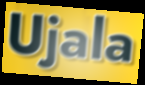
Ujala